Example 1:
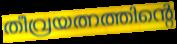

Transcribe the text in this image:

തീവ്രയത്നത്തിന്റെ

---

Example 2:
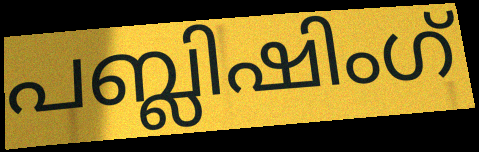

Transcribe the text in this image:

പബ്ലിഷിംഗ്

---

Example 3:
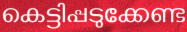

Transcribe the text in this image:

കെട്ടിപ്പടുക്കേണ്ട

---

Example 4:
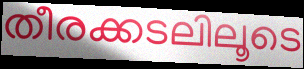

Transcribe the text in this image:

തീരക്കടലിലൂടെ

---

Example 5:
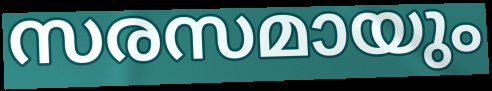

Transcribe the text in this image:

സരസമായും